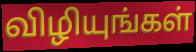
விழியுங்கள்